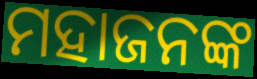
ମହାଜନଙ୍କ